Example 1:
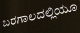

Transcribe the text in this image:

ಬರಗಾಲದಲ್ಲಿಯೂ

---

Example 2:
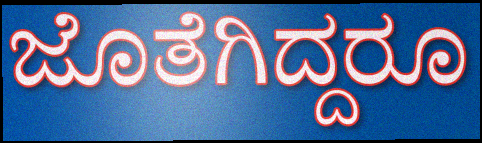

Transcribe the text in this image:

ಜೊತೆಗಿದ್ದರೂ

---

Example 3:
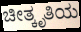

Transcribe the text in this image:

ಚೀತ್ಕೃತಿಯ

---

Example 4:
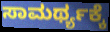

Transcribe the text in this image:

ಸಾಮರ್ಥ್ಯಕ್ಕೆ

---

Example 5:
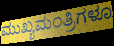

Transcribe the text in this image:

ಮುಖ್ಯಮಂತ್ರಿಗಳೂ